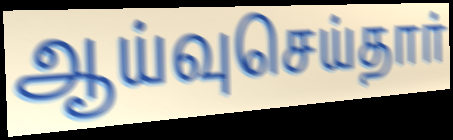
ஆய்வுசெய்தார்